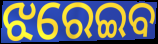
ଝରେଇବ